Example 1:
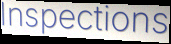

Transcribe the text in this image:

Inspections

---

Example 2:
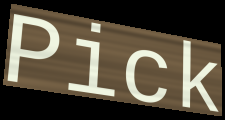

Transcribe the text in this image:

Pick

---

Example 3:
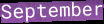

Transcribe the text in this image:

September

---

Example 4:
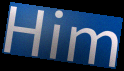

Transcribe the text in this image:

Him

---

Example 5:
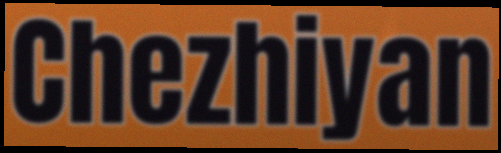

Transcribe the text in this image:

Chezhiyan